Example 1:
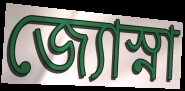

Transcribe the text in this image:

জ্যোস্না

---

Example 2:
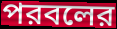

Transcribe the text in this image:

পরবলের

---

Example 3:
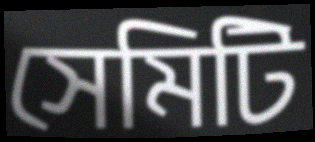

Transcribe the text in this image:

সেমিটি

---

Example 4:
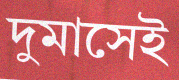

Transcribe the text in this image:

দুমাসেই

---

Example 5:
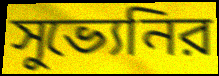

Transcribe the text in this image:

সুভ্যেনির